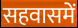
सहवासमें